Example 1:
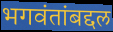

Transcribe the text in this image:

भगवंतांबद्दल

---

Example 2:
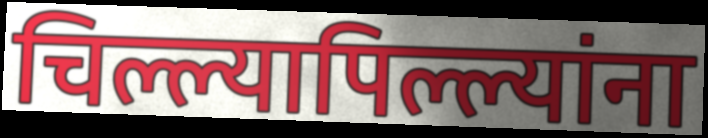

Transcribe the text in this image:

चिल्ल्यापिल्ल्यांना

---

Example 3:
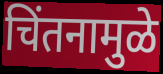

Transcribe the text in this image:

चिंतनामुळे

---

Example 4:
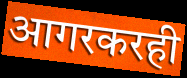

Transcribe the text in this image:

आगरकरही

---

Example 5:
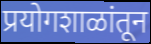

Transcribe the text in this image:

प्रयोगशाळांतून